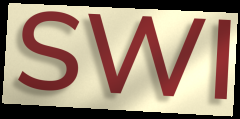
SWI